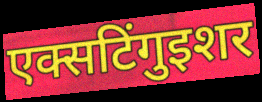
एक्सटिंगुइशर